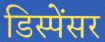
डिस्पेंसर